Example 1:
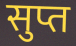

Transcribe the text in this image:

सुप्त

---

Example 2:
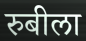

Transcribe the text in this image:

रुबीला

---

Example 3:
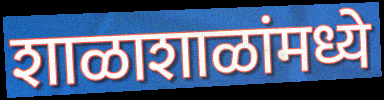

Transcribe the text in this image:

शाळाशाळांमध्ये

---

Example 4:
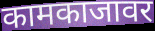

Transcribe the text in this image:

कामकाजावर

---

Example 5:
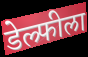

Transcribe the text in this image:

डेल्फीला